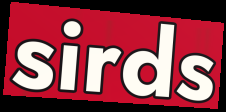
sirds